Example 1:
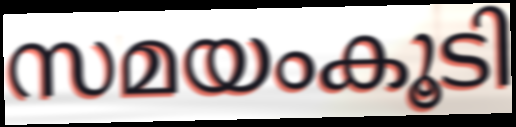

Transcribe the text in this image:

സമയംകൂടി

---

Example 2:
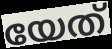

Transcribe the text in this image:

യേത്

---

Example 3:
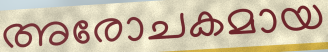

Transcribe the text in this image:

അരോചകമായ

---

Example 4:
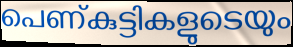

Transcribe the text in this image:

പെണ്കുട്ടികളുടെയും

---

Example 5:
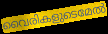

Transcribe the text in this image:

വൈരികളുടെമേൽ